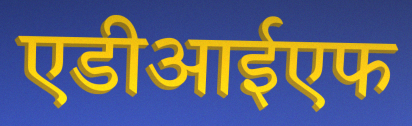
एडीआईएफ